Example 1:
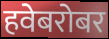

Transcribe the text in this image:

हवेबरोबर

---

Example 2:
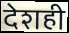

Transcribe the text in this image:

देशही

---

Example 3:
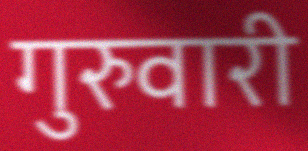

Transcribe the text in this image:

गुरुवारी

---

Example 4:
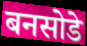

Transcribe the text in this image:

बनसोडे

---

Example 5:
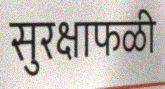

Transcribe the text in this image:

सुरक्षाफळी